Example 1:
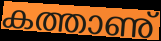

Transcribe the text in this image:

കത്താണു്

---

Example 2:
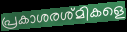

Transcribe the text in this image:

പ്രകാശരശ്മികളെ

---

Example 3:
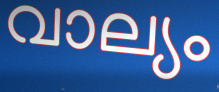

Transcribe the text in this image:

വാല്യം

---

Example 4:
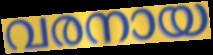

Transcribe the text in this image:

വരനായ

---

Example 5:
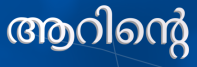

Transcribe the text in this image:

ആറിന്റെ